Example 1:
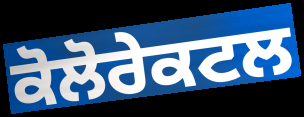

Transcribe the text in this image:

ਕੋਲੋਰੇਕਟਲ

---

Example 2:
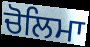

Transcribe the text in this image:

ਚੋਲਿਮਾ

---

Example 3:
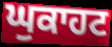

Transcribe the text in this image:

ਘੁਕਾਹਟ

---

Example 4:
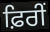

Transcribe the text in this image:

ਫ਼ਿਰੀਂ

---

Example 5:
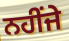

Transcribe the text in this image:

ਨਹੀਂਜੇ